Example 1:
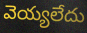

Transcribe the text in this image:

వెయ్యలేదు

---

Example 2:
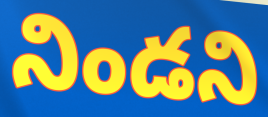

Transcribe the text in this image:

నిండని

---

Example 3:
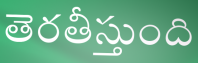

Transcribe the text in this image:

తెరతీస్తుంది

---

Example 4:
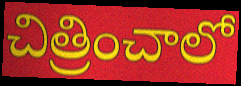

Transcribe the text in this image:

చిత్రించాలో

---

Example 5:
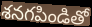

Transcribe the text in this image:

శనగపిండితో